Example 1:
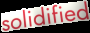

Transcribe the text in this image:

solidified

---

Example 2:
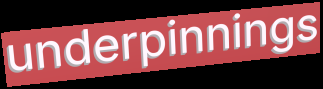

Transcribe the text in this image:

underpinnings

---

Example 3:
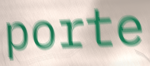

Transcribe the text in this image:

porte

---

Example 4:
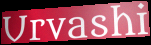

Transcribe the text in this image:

Urvashi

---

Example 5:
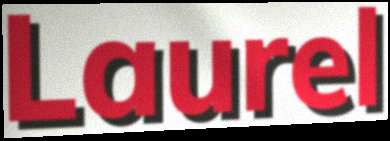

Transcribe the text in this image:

Laurel